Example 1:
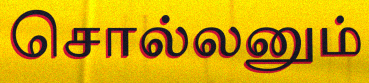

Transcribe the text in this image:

சொல்லனும்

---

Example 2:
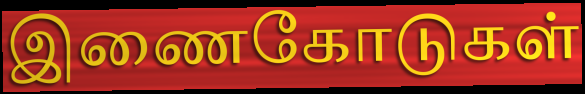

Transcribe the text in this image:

இணைகோடுகள்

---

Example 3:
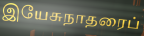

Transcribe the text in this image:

இயேசுநாதரைப்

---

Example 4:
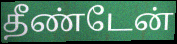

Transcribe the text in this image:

தீண்டேன்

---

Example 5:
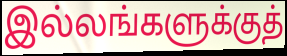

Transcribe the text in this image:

இல்லங்களுக்குத்